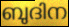
ബുദിന